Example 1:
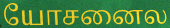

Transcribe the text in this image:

யோசனைல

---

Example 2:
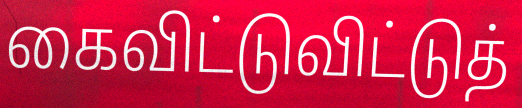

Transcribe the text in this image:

கைவிட்டுவிட்டுத்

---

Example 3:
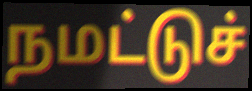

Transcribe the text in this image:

நமட்டுச்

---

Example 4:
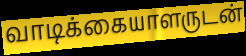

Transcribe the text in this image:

வாடிக்கையாளருடன்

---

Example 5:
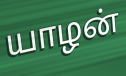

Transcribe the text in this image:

யாழன்